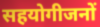
सहयोगीजनों